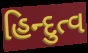
હિન્દુત્વ